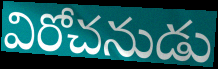
విరోచనుడు